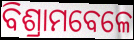
ବିଶ୍ରାମବେଳେ